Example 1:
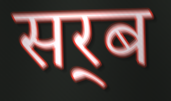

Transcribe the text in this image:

सर्ब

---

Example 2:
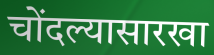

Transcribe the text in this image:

चोंदल्यासारखा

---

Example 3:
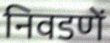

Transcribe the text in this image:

निवडणें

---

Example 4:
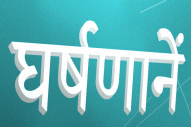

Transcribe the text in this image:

घर्षणानें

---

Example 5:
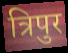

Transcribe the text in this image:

त्रिपुर